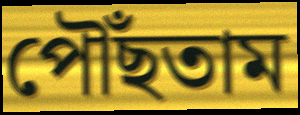
পৌঁছতাম